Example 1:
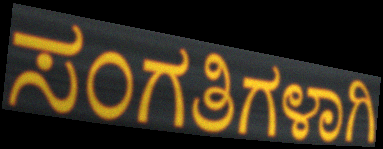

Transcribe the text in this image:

ಸಂಗತಿಗಳಾಗಿ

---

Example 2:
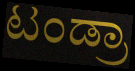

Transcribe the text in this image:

ಟಂಡ್ರಾ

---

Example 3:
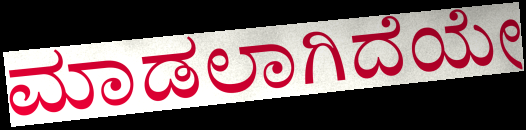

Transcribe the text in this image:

ಮಾಡಲಾಗಿದೆಯೇ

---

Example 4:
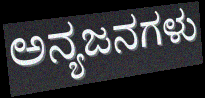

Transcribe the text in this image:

ಅನ್ಯಜನಗಳು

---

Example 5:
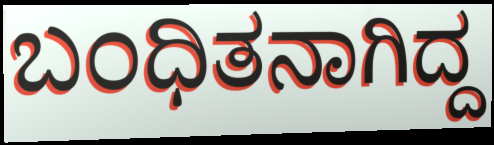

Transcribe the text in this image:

ಬಂಧಿತನಾಗಿದ್ದ